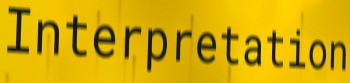
Interpretation